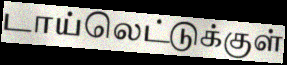
டாய்லெட்டுக்குள்